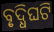
ବୃଦ୍ଧିଘଟି